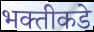
भक्तीकडे